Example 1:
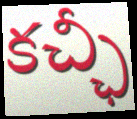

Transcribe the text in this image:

కచ్ఛీ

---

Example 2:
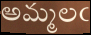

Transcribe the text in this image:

అమ్మలఁ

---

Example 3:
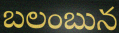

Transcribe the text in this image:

బలంబున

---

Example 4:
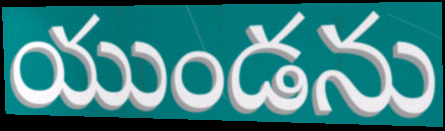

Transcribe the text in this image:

యుండను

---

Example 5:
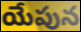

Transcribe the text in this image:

యేపున